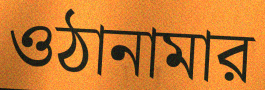
ওঠানামার